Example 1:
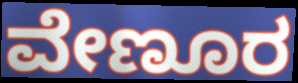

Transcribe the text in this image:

ವೇಣೂರ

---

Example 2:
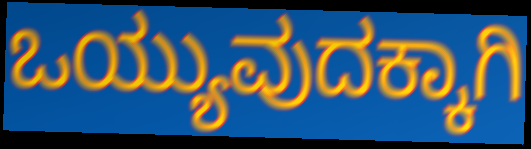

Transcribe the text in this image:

ಒಯ್ಯುವುದಕ್ಕಾಗಿ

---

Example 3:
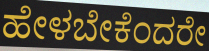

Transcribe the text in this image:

ಹೇಳಬೇಕೆಂದರೇ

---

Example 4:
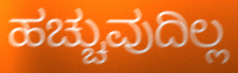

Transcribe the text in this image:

ಹಚ್ಚುವುದಿಲ್ಲ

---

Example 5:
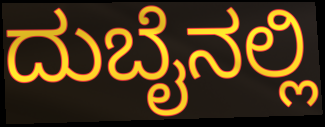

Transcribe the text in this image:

ದುಬೈನಲ್ಲಿ